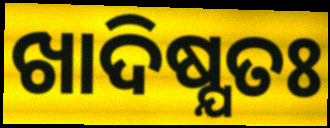
ଖାଦିଷ୍ଯତଃ